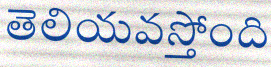
తెలియవస్తోంది